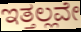
ಇತ್ತಲ್ಲವೇ